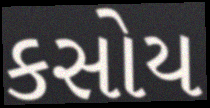
કસોય